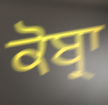
ਕੋਬ੍ਰਾ